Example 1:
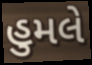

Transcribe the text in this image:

હુમલે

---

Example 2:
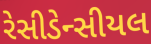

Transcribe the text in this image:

રેસીડેન્સીયલ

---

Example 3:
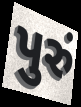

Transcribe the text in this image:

પુરું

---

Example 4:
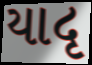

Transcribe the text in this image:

યાદૃ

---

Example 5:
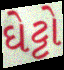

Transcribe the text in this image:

ઘેટ્ટો